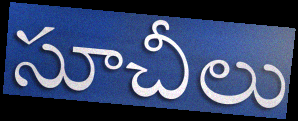
సూచీలు